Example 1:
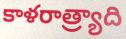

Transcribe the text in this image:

కాళరాత్ర్యాది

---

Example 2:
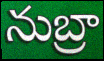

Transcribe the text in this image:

నుబ్రా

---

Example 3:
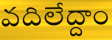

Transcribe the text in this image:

వదిలేద్దాం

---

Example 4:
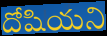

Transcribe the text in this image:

దోషియని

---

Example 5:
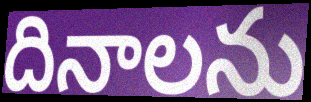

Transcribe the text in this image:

దినాలను